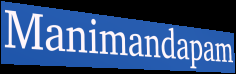
Manimandapam